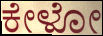
ಕೇಳೋ